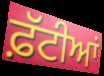
ਫ਼ੱਟੀਆਂ